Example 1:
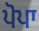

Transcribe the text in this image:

ਪੋਪਾ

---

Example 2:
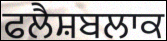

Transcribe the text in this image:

ਫਲੈਸ਼ਬਲਾਕ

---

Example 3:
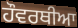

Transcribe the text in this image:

ਹੌਵਰਥੀਆ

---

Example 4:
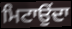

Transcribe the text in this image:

ਮਿਟਾਉਂਦਾ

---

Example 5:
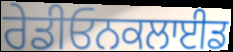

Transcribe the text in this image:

ਰੇਡੀਓਨਕਲਾਈਡ